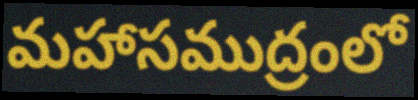
మహాసముద్రంలో